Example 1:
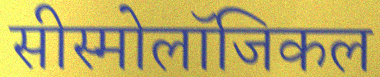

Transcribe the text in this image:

सीस्मोलॉजिकल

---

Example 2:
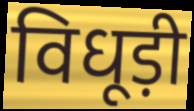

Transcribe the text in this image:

विधूड़ी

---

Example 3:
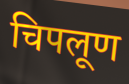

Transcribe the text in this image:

चिपलूण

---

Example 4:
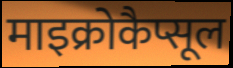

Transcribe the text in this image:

माइक्रोकैप्सूल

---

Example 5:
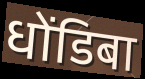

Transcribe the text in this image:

धोंडिबा